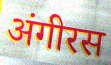
अंगीरस